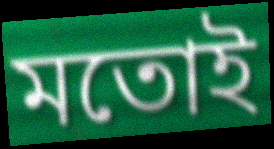
মতোই